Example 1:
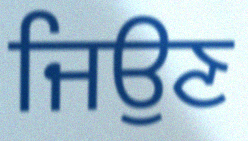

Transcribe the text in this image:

ਜਿਉਣ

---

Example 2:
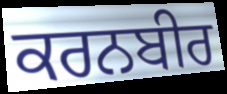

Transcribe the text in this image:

ਕਰਨਬੀਰ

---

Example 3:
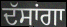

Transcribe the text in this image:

ਦੱਸਾਂਗਾ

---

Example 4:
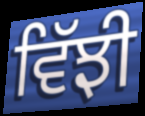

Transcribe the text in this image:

ਵਿੱਝੀ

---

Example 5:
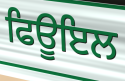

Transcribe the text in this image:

ਫਿਊਇਲ